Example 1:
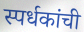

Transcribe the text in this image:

स्पर्धकांची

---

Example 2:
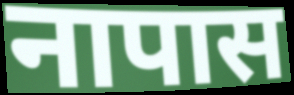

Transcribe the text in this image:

नापास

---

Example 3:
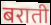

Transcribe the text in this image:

बराती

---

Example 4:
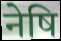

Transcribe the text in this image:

नेषि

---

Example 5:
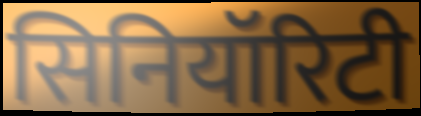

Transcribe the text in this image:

सिनियॉरिटी